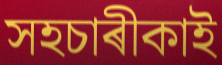
সহচাৰীকাই